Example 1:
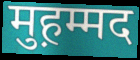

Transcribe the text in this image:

मुह़म्मद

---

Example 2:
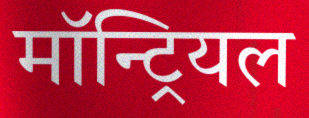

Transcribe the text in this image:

मॉन्ट्रियल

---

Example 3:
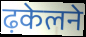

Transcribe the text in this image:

ढ़केलने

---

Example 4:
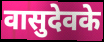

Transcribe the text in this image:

वासुदेवके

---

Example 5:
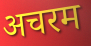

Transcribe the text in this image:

अचरम